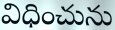
విధించును